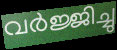
വർജ്ജിച്ചു